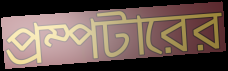
প্রম্পটারের